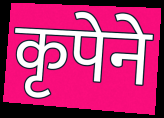
कृपेने